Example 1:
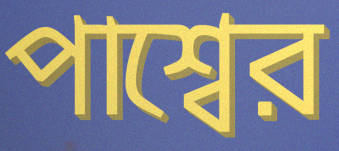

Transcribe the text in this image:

পাশ্বের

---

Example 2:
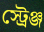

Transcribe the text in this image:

স্ট্রেঞ্জ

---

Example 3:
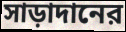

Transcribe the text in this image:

সাড়াদানের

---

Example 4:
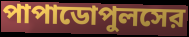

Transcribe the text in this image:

পাপাডোপুলসের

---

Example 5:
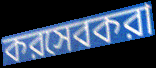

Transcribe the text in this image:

করসেবকরা